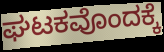
ಘಟಕವೊಂದಕ್ಕೆ